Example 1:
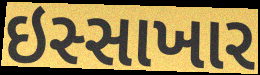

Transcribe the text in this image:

ઇસ્સાખાર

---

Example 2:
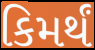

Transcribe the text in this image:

કિમર્થં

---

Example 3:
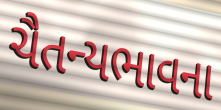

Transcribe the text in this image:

ચૈતન્યભાવના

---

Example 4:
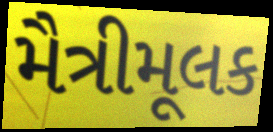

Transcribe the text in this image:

મૈત્રીમૂલક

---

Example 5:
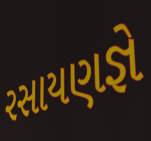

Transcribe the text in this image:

રસાયણજ્ઞે